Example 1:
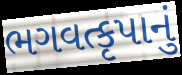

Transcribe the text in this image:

ભગવત્કૃપાનું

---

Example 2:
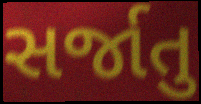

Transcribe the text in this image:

સર્જાતુ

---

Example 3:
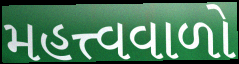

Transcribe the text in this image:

મહત્ત્વવાળો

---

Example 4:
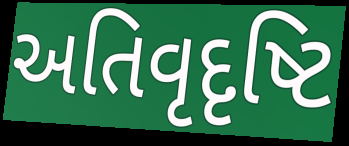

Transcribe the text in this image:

અતિવૃદૃષ્ટિ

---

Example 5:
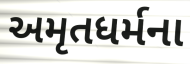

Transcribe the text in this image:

અમૃતધર્મના